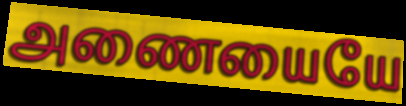
அணையையே